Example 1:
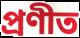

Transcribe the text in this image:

প্ৰণীত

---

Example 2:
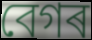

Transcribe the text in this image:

বেগৰ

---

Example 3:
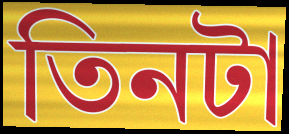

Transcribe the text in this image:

তিনটা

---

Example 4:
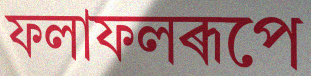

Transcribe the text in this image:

ফলাফলৰূপে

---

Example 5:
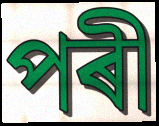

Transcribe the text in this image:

পৰী